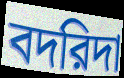
বদরিদা